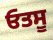
ਓਤਸੂ